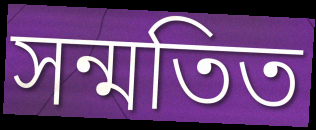
সন্মতিত